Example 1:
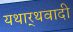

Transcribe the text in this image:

यथार्थवादी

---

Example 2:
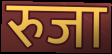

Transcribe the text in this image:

रुजा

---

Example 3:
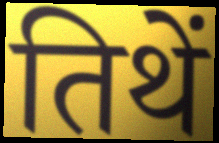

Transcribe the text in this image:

तिथें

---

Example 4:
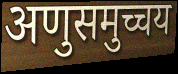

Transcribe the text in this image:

अणुसमुच्चय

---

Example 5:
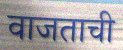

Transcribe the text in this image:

वाजताची